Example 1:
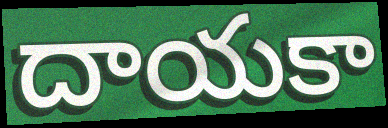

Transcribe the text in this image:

దాయకా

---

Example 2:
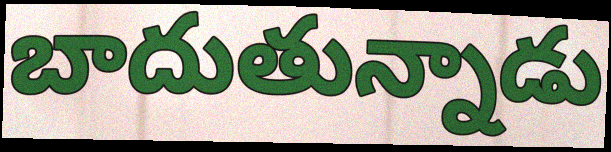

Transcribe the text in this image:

బాదుతున్నాడు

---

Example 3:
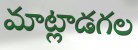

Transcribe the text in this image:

మాట్లాడగల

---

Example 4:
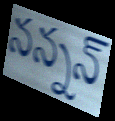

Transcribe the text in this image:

నన్నన్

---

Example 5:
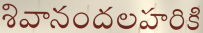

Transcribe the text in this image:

శివానందలహరికి